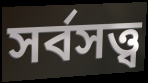
সর্বসত্ত্ব